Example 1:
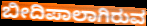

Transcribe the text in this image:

ಬೀದಿಪಾಲಾಗಿರುವ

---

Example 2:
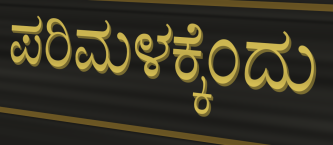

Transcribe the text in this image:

ಪರಿಮಳಕ್ಕೆಂದು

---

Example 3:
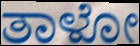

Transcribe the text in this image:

ತಾಳೋ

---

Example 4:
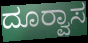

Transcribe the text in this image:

ದೂರ‍್ವಾಸ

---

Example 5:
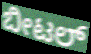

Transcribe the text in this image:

ಬೀಟಲ್